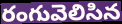
రంగువెలిసిన